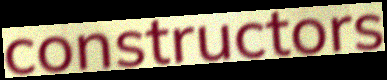
constructors